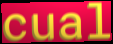
cual